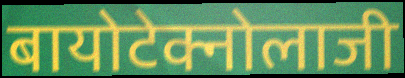
बायोटेक्नोलाजी